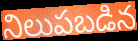
నిలుపబడిన